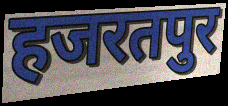
हजरतपुर